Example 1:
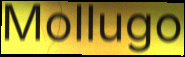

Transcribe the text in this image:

Mollugo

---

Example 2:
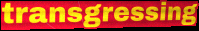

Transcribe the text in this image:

transgressing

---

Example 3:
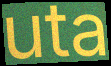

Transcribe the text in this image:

uta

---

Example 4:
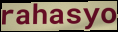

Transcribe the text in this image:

rahasyo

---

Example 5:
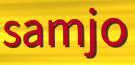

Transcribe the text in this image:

samjo